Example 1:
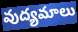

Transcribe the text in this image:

వుద్యమాలు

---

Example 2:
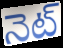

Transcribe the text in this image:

నెట్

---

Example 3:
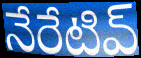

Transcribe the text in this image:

నేరేటివ్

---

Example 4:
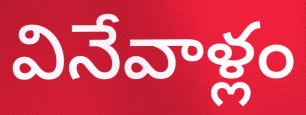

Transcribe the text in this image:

వినేవాళ్లం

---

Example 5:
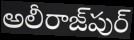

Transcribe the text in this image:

అలీరాజ్‌పుర్